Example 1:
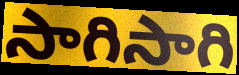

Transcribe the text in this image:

సాగిసాగి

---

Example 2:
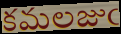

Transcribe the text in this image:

కమలజుఁ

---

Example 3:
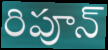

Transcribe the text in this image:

రిపూన్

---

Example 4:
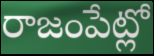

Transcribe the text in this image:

రాజంపేట్లో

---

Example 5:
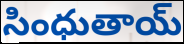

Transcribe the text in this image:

సింధుతాయ్